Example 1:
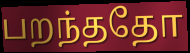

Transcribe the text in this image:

பறந்ததோ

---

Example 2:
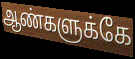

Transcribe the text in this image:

ஆண்களுக்கே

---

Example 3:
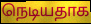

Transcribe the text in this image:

நெடியதாக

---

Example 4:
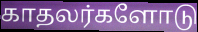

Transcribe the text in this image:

காதலர்களோடு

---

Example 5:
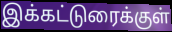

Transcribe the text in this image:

இக்கட்டுரைக்குள்